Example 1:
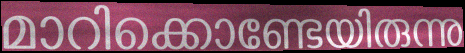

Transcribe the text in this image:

മാറിക്കൊണ്ടേയിരുന്നു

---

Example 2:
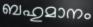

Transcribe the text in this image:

ബഹുമാനം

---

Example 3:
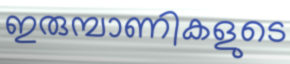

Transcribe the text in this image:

ഇരുമ്പാണികളുടെ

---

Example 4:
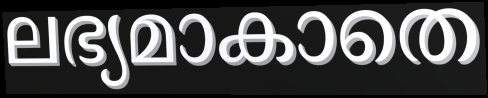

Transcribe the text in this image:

ലഭ്യമാകാതെ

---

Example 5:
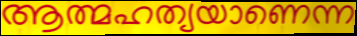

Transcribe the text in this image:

ആത്മഹത്യയാണെന്ന